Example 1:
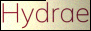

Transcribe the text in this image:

Hydrae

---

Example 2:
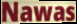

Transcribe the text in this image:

Nawas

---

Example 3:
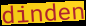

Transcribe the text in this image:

dinden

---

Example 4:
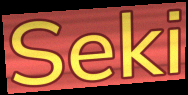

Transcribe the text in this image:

Seki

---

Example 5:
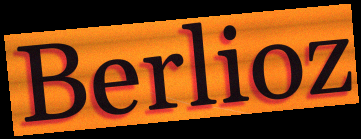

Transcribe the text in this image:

Berlioz